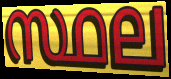
സ്ഥല